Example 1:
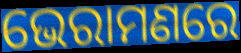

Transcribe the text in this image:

ଭେରାମଣରେ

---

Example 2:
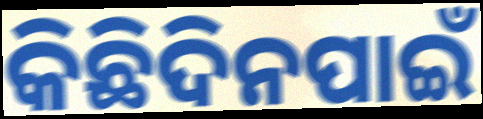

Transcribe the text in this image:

କିଛିଦିନପାଇଁ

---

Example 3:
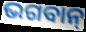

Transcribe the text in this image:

ଭଗବାନ୍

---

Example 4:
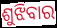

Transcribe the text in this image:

ଶୁଝିବାର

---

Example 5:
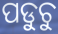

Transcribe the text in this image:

ପଡୁଚୁ